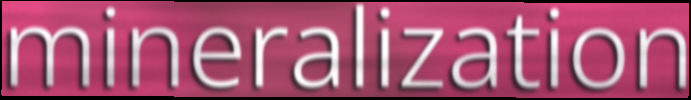
mineralization